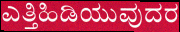
ಎತ್ತಿಹಿಡಿಯುವುದರ